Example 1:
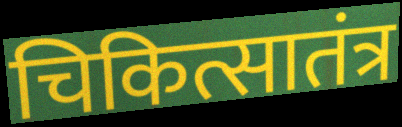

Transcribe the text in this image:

चिकित्सातंत्र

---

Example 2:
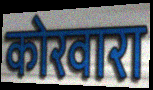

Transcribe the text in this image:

कोरवारा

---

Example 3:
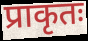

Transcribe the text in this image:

प्राकृतः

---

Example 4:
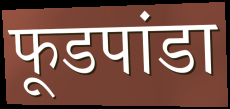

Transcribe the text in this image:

फूडपांडा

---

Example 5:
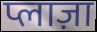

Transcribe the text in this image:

प्लाज़ा